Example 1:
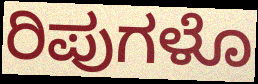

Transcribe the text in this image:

ರಿಪುಗಳೊ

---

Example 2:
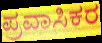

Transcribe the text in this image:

ಪ್ರವಾಸಿಕರ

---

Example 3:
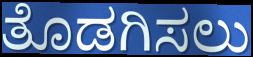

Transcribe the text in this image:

ತೊಡಗಿಸಲು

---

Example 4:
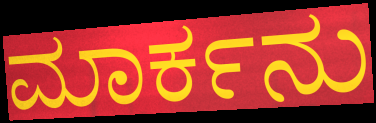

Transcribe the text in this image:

ಮಾರ್ಕನು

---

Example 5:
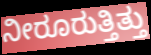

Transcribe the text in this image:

ನೀರೂರುತ್ತಿತ್ತು